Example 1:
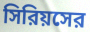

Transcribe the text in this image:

সিরিয়সের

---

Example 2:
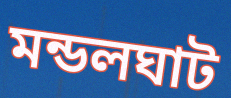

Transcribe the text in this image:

মন্ডলঘাট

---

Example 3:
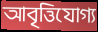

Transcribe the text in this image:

আবৃত্তিযোগ্য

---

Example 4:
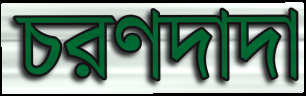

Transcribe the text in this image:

চরণদাদা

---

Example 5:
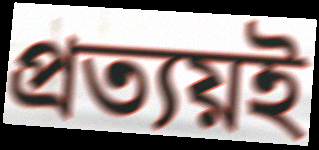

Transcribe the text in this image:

প্রত্যয়ই